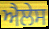
ਐਲੇਸ